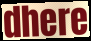
dhere